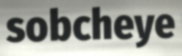
sobcheye